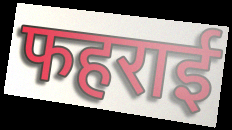
फहराई